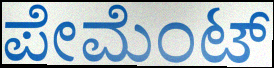
ಪೇಮೆಂಟ್